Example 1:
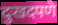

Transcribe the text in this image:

दुःखदपणे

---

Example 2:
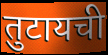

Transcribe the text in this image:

तुटायची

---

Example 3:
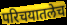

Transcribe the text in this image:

परिचयातलेच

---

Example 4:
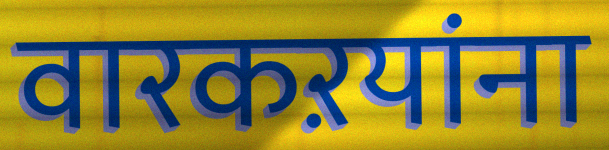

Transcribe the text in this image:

वारकऱयांना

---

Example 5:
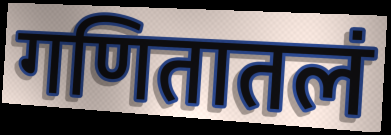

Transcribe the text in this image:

गणितातलं